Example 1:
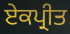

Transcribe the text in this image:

ਏਕਪ੍ਰੀਤ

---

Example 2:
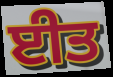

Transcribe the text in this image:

ਈਤ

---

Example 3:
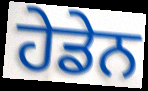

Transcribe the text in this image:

ਹੇਡੇਨ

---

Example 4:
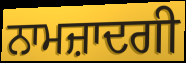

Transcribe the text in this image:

ਨਾਮਜ਼ਾਦਗੀ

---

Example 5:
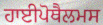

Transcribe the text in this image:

ਹਾਈਪੋਥੈਲਮਸ